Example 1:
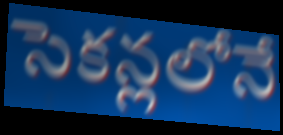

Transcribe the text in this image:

సెకన్లలోనే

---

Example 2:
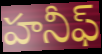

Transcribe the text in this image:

హనీఫ్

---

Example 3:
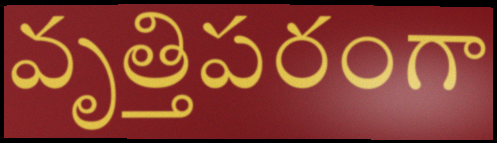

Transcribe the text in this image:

వృత్తిపరంగా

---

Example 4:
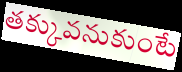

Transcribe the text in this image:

తక్కువనుకుంటే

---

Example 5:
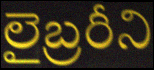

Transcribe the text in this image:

లైబ్రరీని